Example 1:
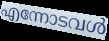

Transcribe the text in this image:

എന്നോടവൾ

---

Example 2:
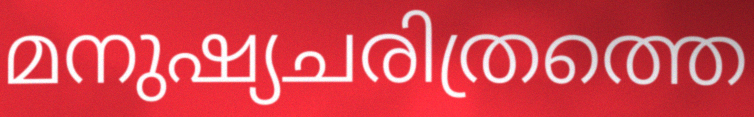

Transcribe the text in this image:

മനുഷ്യചരിത്രത്തെ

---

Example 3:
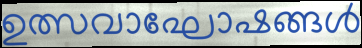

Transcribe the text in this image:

ഉത്സവാഘോഷങ്ങൾ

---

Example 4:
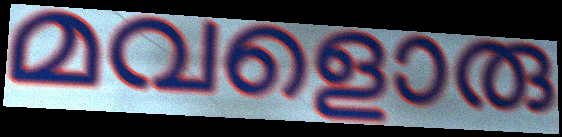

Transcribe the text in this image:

മവളൊരു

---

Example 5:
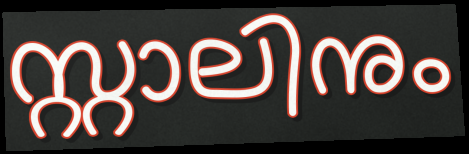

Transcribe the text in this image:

സ്റ്റാലിനും